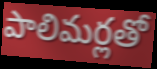
పాలిమర్లతో